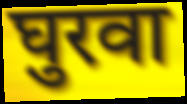
घुरवा